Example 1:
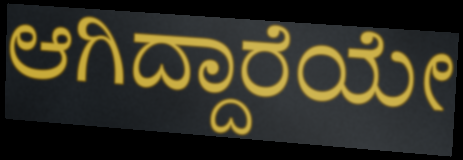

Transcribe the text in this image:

ಆಗಿದ್ದಾರೆಯೇ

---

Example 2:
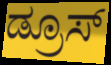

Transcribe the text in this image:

ಡ್ರೂಸ್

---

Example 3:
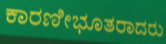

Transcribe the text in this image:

ಕಾರಣೀಭೂತರಾದರು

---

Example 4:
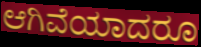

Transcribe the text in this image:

ಆಗಿವೆಯಾದರೂ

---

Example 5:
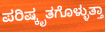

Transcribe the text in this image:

ಪರಿಷ್ಕೃತಗೊಳ್ಳುತ್ತಾ